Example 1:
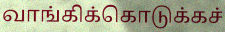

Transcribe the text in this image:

வாங்கிக்கொடுக்கச்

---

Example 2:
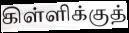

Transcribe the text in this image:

கிள்ளிக்குத்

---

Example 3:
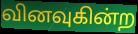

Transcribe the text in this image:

வினவுகின்ற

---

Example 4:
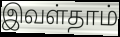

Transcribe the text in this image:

இவள்தாம்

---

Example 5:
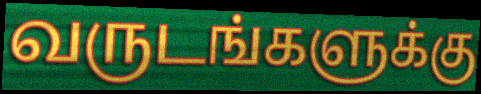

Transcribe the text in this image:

வருடங்களுக்கு